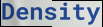
Density